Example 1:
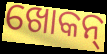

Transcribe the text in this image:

ଖୋକନ୍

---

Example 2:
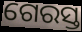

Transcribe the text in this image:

ଗେରସ୍ତ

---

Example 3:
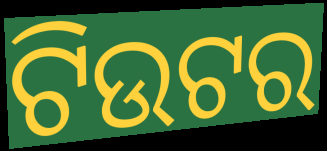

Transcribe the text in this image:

ଟିଉଟର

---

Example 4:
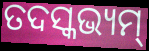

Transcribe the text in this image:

ତଦସ୍କଭ୍ୟମ୍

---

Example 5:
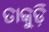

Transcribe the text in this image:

ତାକୁଡ଼ି